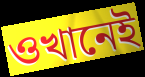
ওখানেই